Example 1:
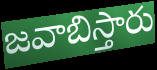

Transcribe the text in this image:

జవాబిస్తారు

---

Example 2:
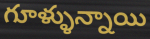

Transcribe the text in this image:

గూళ్ళున్నాయి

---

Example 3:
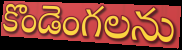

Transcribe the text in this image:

కొండెంగలను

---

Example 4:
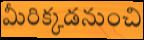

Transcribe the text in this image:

మీరిక్కడనుంచి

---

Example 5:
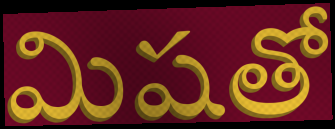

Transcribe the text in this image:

మిషతో